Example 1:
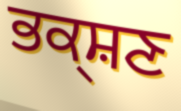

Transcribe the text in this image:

ਭਕ੍ਸ਼ਣ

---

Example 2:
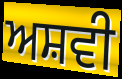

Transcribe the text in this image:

ਅਸ਼ਵੀ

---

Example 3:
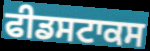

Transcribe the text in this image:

ਫੀਡਸਟਾਕਸ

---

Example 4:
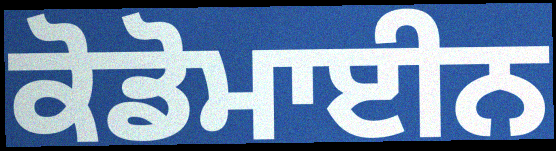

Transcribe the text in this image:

ਕੋਡੋਮਾਈਨ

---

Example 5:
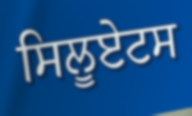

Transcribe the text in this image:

ਸਿਲੂਏਟਸ